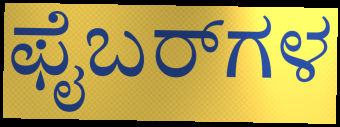
ಫೈಬರ್‌ಗಳ